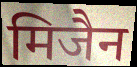
मिजैन